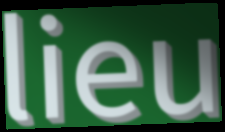
lieu